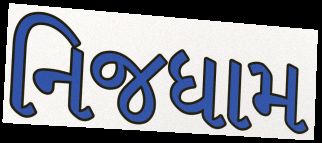
નિજધામ